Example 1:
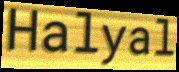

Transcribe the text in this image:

Halyal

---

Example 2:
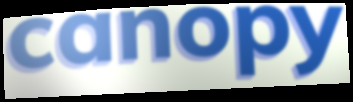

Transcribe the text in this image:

canopy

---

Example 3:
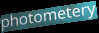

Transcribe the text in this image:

photometery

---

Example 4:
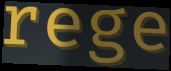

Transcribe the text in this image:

rege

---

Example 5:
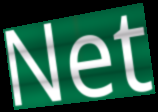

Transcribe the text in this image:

Net